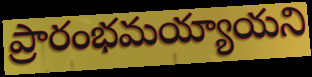
ప్రారంభమయ్యాయని